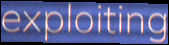
exploiting